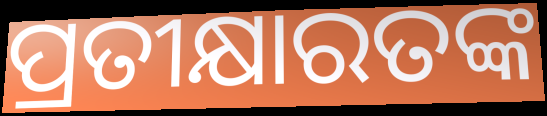
ପ୍ରତୀକ୍ଷାରତଙ୍କ